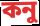
কনু